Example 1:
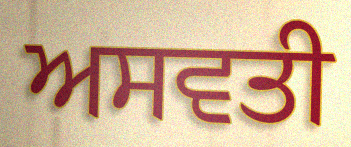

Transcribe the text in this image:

ਅਸਵਤੀ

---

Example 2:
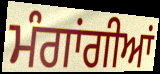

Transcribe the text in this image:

ਮੰਗਾਂਗੀਆਂ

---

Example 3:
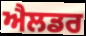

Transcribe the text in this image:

ਐਲਡਰ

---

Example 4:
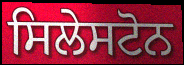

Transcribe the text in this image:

ਸਿਲੇਸਟੋਨ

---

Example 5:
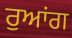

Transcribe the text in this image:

ਰੁਆਂਗ